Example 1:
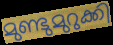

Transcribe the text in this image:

മുണ്ടുമുറുക്കി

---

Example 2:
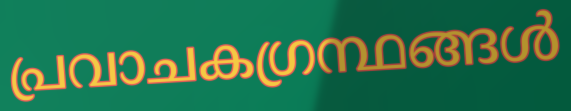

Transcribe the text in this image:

പ്രവാചകഗ്രന്ഥങ്ങൾ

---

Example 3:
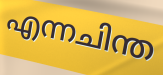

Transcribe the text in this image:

എന്നചിന്ത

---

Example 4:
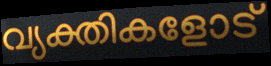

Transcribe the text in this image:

വ്യക്തികളോട്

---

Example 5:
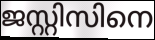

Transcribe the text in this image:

ജസ്റ്റിസിനെ